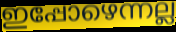
ഇപ്പോഴെന്നല്ല